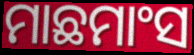
ମାଛମାଂସ